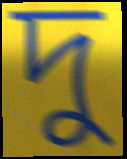
দু